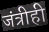
जंत्रीही